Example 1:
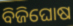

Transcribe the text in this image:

ବିଜିଘୋଷ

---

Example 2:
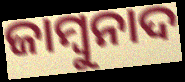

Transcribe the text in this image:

ଜାମ୍ବୁନାଦ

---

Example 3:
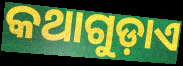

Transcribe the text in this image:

କଥାଗୁଡ଼ାଏ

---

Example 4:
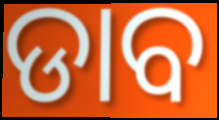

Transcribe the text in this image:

ଡାବ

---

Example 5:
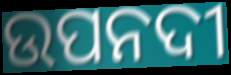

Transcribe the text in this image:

ଉପନଦୀ